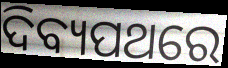
ଦିବ୍ୟପଥରେ